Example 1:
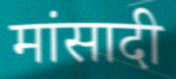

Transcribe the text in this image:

मांसादी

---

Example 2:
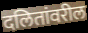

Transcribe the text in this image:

दलितांवरील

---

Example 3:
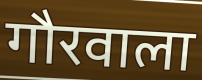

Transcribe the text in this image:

गौरवाला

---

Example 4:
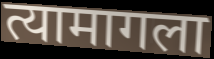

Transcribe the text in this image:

त्यामागला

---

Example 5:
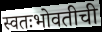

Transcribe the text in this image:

स्वतःभोवतीची